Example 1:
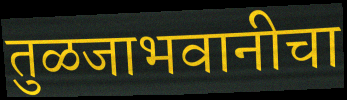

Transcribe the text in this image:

तुळजाभवानीचा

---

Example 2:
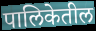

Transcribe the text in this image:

पालिकेतील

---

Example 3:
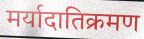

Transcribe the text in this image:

मर्यादातिक्रमण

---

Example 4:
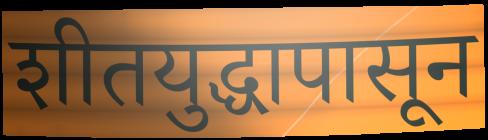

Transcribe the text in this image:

शीतयुद्धापासून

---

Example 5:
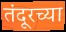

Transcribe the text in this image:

तंदूरच्या